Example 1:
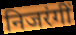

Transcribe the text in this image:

निजरंगीं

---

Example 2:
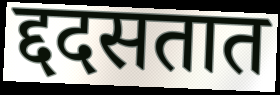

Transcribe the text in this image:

द्ददसतात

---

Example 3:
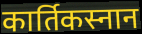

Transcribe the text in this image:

कार्तिकस्नान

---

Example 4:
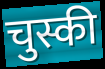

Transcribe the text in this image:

चुस्की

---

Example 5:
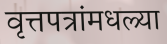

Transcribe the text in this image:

वृत्तपत्रांमधल्या